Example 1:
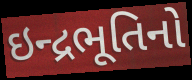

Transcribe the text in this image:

ઇન્દ્રભૂતિનો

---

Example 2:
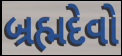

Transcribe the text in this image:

બ્રહ્મદેવો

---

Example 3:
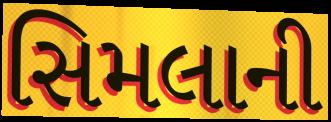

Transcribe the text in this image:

સિમલાની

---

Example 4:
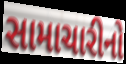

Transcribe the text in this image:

સામાચારીનો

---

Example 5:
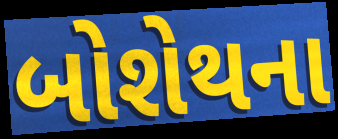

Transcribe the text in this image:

બોશેથના